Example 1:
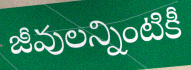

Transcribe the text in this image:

జీవులన్నింటికీ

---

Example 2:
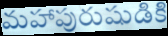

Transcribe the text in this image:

మహాపురుషుడికి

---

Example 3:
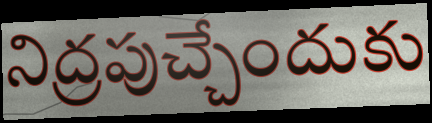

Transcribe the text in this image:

నిద్రపుచ్చేందుకు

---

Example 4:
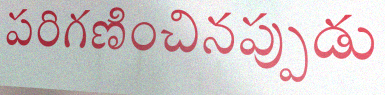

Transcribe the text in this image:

పరిగణించినప్పుడు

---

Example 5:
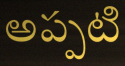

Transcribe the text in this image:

అప్పటి